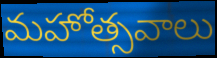
మహోత్సవాలు